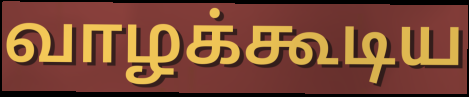
வாழக்கூடிய